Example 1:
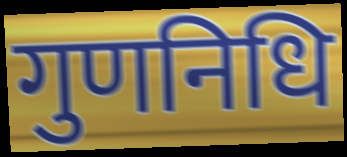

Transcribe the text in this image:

गुणनिधि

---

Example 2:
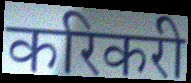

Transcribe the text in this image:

करिकरी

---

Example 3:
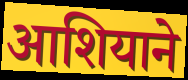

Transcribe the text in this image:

आशियाने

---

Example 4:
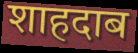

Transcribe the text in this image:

शाहदाब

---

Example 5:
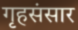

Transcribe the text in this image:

गृहसंसार